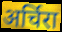
अर्चिरा